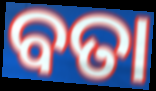
ବତା